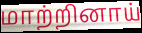
மாற்றினாய்